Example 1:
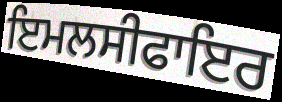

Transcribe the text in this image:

ਇਮਲਸੀਫਾਇਰ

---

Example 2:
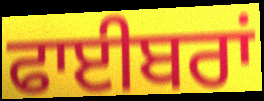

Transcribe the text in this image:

ਫਾਈਬਰਾਂ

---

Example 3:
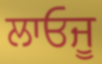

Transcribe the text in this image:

ਲਾਓਜੂ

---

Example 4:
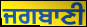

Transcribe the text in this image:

ਜਗਬਾਣੀ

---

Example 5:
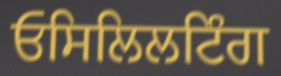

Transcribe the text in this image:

ਓਸਿਲਿਲਟਿੰਗ